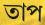
তাপ